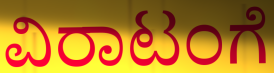
ವಿರಾಟಂಗೆ